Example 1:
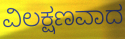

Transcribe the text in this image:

ವಿಲಕ್ಷಣವಾದ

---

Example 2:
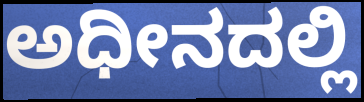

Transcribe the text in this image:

ಅಧೀನದಲ್ಲಿ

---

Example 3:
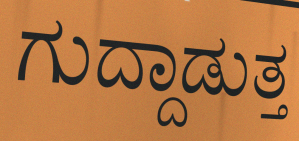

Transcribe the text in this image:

ಗುದ್ದಾಡುತ್ತ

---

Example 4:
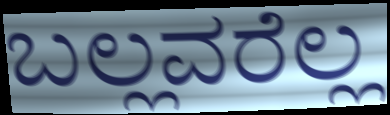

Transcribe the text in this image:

ಬಲ್ಲವರೆಲ್ಲ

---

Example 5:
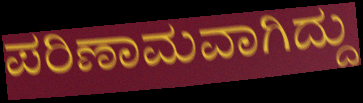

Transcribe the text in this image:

ಪರಿಣಾಮವಾಗಿದ್ದು